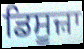
ਡਿਸੂਜ਼ਾ